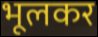
भूलकर